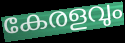
കേരളവും